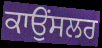
ਕਾਉਂਸਲਰ